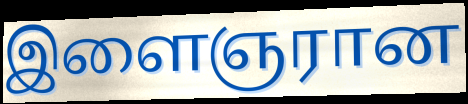
இளைஞரான